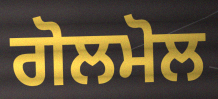
ਗੋਲਮੋਲ